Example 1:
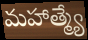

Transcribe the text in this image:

మహాత్మ్యే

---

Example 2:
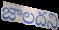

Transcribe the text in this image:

జాలదని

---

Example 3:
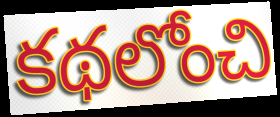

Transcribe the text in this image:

కథలోంచి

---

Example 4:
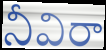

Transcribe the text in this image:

నీవిరా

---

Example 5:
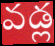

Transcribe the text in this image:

వడ్ల